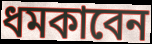
ধমকাবেন